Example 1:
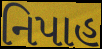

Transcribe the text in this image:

નિપાહ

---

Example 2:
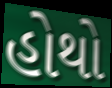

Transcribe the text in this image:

હોથો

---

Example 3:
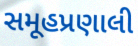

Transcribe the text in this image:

સમૂહપ્રણાલી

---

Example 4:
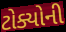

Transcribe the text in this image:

ટોક્યોની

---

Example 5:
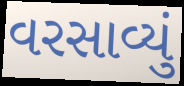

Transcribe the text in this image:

વરસાવ્યું